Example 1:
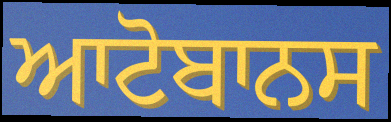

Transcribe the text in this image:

ਆਟੋਬਾਨਸ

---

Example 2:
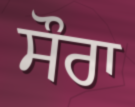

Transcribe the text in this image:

ਸੌਰਾ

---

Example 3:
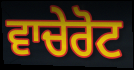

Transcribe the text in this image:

ਵਾਚੇਰੋਟ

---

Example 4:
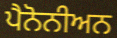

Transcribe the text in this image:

ਪੈਨੋਨੀਅਨ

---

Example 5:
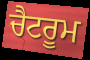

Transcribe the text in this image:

ਚੈਟਰੂਮ